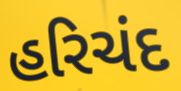
હરિચંદ